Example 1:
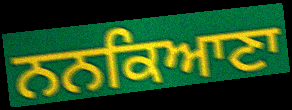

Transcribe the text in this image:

ਨਨਕਿਆਣਾ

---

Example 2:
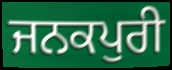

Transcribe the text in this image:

ਜਨਕਪੁਰੀ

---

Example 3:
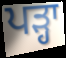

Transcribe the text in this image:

ਪੜ੍ਹਾ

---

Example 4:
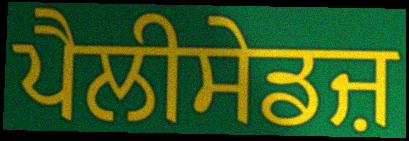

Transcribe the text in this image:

ਪੈਲੀਸੇਡਜ਼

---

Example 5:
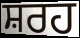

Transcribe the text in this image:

ਸ਼ਰਹ